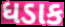
ધડાક